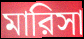
মারিসা